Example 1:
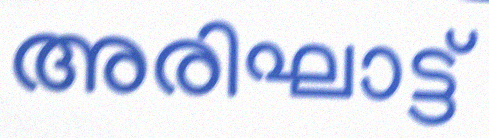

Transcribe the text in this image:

അരിഘാട്ട്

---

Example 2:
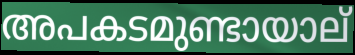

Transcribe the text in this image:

അപകടമുണ്ടായാല്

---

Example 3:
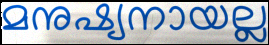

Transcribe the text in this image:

മനുഷ്യനായല്ല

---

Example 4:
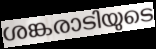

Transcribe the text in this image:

ശങ്കരാടിയുടെ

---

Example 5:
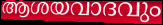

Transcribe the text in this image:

ആശയവാദവും